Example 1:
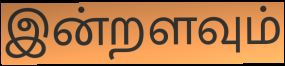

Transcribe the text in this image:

இன்றளவும்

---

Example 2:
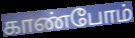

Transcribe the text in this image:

காண்போம்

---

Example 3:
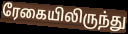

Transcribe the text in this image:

ரேகையிலிருந்து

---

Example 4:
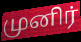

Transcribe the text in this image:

முனிர்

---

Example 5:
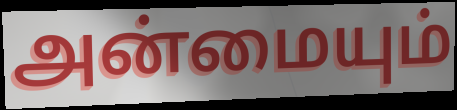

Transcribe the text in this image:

அன்மையும்